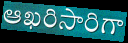
ఆఖరిసారిగా